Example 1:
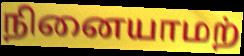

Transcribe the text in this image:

நினையாமற்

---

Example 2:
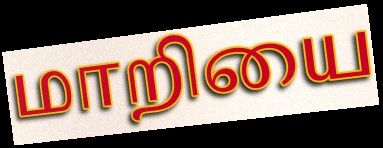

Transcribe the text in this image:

மாறியை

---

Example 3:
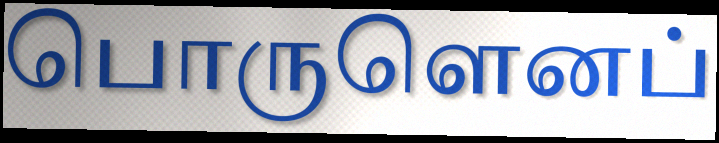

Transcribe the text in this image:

பொருளெனப்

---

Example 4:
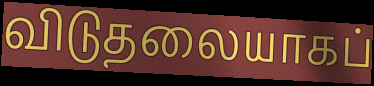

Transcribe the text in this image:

விடுதலையாகப்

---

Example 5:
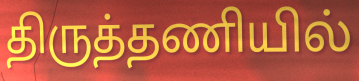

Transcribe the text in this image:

திருத்தணியில்